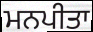
ਮਨਪੀਤਾ